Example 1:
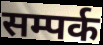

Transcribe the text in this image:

सम्पर्क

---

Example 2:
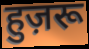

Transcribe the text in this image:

हुज़रू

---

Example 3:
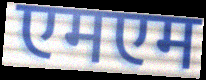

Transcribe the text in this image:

एमएम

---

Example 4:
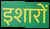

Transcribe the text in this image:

इशारों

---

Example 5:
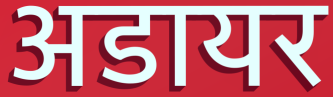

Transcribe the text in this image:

अडायर